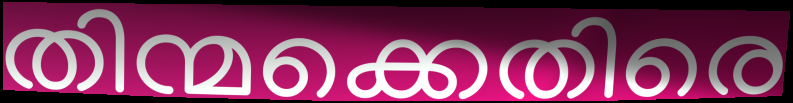
തിന്മക്കെതിരെ